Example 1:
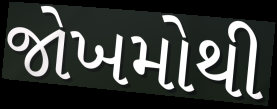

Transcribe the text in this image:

જોખમોથી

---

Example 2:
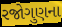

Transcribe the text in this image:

રજોગુણના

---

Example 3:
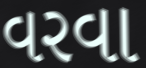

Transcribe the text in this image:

વરવા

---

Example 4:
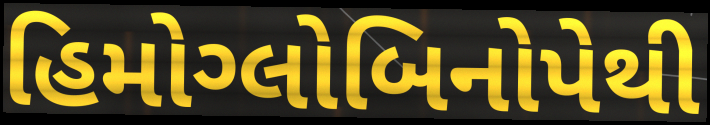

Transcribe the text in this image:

હિમોગ્લોબિનોપેથી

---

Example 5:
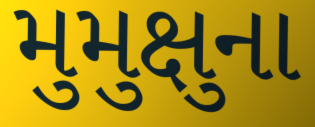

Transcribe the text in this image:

મુમુક્ષુના